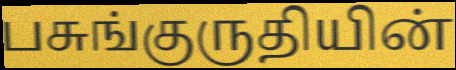
பசுங்குருதியின்